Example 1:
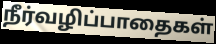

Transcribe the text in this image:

நீர்வழிப்பாதைகள்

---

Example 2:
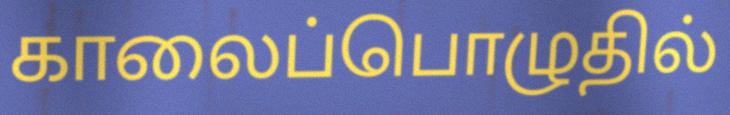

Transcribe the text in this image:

காலைப்பொழுதில்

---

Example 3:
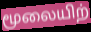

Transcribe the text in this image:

மூலையிற்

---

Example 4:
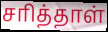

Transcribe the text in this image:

சரித்தாள்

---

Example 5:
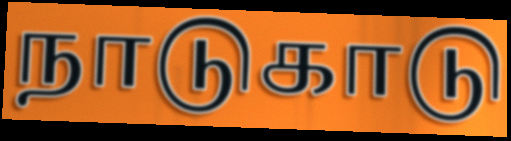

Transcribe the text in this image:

நாடுகாடு